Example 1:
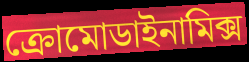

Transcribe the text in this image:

ক্রোমোডাইনামিক্স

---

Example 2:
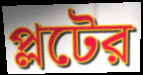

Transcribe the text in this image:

প্লটের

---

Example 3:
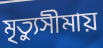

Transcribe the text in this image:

মৃত্যুসীমায়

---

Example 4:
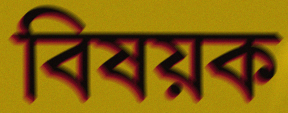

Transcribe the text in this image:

বিষয়ক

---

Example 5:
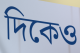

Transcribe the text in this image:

দিকেও